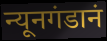
न्यूनगंडानं